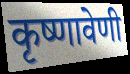
कृष्णावेणी